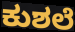
ಕುಶಲೆ